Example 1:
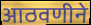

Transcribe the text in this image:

आठवणीने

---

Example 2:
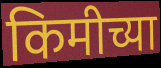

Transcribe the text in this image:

किमीच्या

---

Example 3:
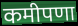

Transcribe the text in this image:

कमीपणा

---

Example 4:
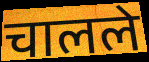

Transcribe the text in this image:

चालले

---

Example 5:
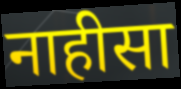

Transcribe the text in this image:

नाहीसा